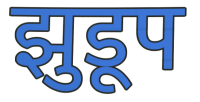
झुडूप